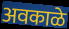
अवकाळे